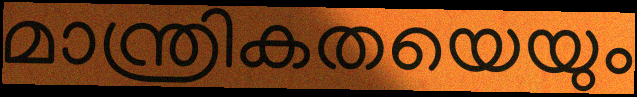
മാന്ത്രികതയെയും